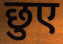
छुए